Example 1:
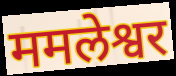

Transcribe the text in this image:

ममलेश्वर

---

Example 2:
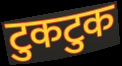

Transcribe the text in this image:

टुकटुक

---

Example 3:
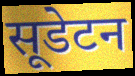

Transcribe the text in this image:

सूडेटन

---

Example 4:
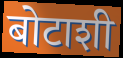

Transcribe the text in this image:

बोटाशी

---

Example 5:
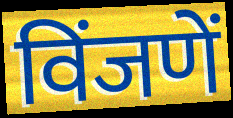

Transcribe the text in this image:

विंजणें